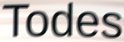
Todes